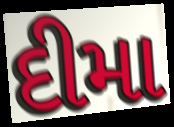
દીમા